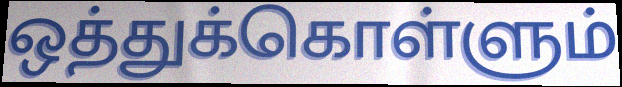
ஒத்துக்கொள்ளும்